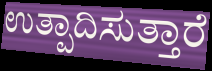
ಉತ್ಪಾದಿಸುತ್ತಾರೆ